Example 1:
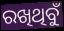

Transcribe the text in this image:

ରଖିଥିବୁଁ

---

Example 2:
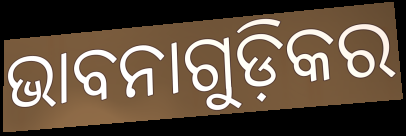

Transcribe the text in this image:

ଭାବନାଗୁଡ଼ିକର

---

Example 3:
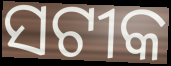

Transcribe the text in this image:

ସଟୀକ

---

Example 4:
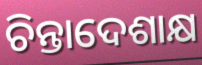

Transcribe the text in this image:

ଚିନ୍ତାଦେଶାକ୍ଷ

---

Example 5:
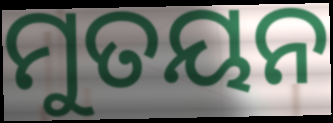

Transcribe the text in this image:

ମୁତୟନ